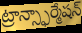
ట్రాన్స్ఫార్మేషన్